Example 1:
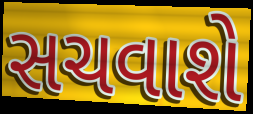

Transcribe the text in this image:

સચવાશે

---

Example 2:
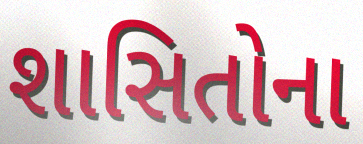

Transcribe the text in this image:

શાસિતોના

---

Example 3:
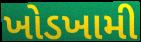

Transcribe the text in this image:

ખોડખામી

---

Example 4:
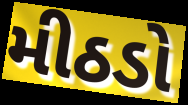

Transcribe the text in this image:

મીઠડો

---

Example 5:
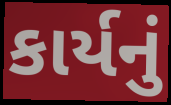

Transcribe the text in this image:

કાર્યનું